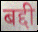
बद्दी